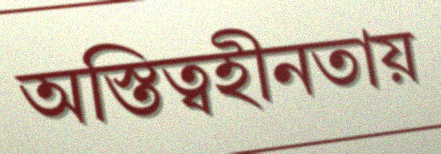
অস্তিত্বহীনতায়